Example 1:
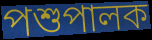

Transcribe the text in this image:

পশুপালক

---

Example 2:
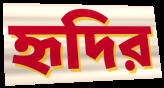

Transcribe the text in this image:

হৃদির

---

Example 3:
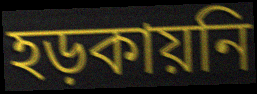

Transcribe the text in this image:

হড়কায়নি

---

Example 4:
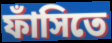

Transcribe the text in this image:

ফাঁসিতে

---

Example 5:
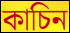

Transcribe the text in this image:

কাচিন